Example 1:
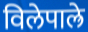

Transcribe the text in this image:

विलेपाल्रे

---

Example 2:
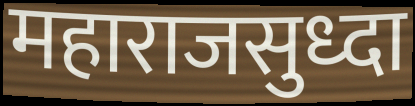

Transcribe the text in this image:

महाराजसुध्दा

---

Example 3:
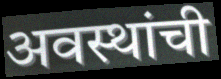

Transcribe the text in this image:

अवस्थांची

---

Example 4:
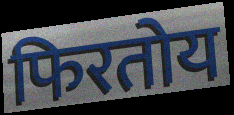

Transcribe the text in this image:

फिरतोय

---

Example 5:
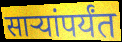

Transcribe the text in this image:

साऱ्यांपर्यंत